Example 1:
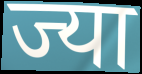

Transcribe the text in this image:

ज्या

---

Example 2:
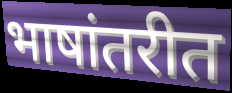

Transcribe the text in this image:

भाषांतरीत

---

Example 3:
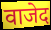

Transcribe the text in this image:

वाजेद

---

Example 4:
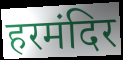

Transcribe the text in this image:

हरमंदिर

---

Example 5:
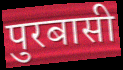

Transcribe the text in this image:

पुरबासी